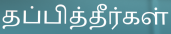
தப்பித்தீர்கள்